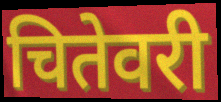
चितेवरी